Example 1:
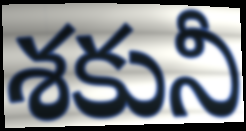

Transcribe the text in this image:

శకునీ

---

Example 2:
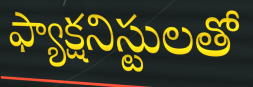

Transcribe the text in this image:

ఫ్యాక్షనిస్టులతో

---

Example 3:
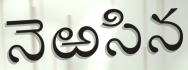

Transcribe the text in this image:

నెఱసిన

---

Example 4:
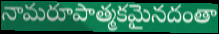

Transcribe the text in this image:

నామరూపాత్మకమైనదంతా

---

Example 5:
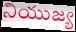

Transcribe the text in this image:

నియుజ్య